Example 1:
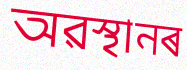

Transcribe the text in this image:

অৱস্থানৰ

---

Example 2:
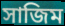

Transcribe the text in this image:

সাজিম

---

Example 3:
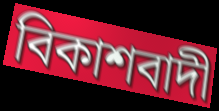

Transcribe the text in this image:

বিকাশবাদী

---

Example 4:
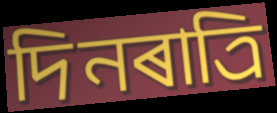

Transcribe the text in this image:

দিনৰাত্ৰি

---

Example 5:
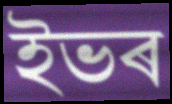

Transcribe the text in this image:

ইভৰ